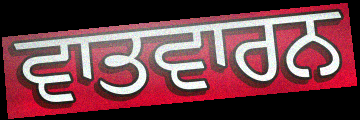
ਵਾਤਵਾਰਨ